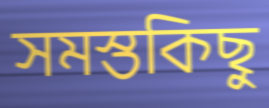
সমস্তকিছু